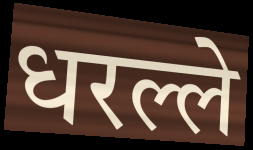
धरल्ले